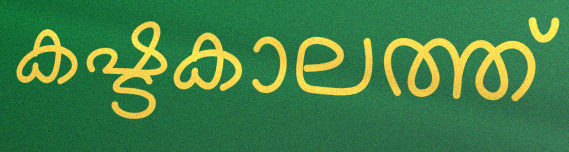
കഷ്ടകാലത്ത്